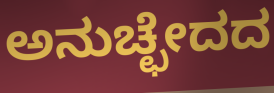
ಅನುಚ್ಛೇದದ